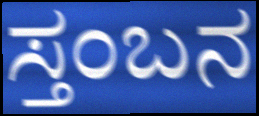
ಸ್ತಂಬನ